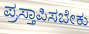
ಪ್ರಸ್ತಾಪಿಸಬೇಕು